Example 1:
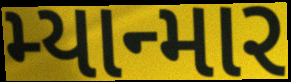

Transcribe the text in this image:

મ્યાન્માર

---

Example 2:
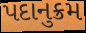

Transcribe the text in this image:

પદાનુક્રમ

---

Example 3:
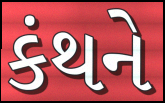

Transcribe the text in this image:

કંથને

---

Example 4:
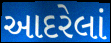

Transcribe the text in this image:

આદરેલાં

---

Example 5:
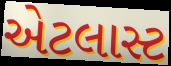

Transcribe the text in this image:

એટલાસ્ટ